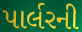
પાર્લરની